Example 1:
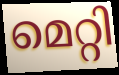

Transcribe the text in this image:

മെറ്റി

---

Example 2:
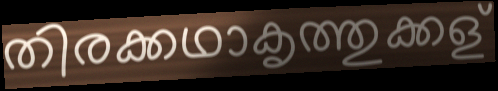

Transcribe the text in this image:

തിരക്കഥാകൃത്തുക്കള്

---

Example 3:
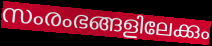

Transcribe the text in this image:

സംരംഭങ്ങളിലേക്കും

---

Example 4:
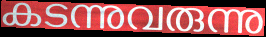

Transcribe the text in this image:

കടന്നുവരുന്നു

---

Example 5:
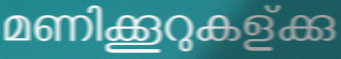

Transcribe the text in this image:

മണിക്കൂറുകള്ക്കു